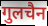
गुलचैन